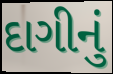
દાગીનું